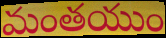
మంతయుం